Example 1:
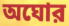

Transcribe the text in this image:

অঘোর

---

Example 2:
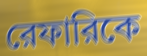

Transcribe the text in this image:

রেফারিকে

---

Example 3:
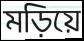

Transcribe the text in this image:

মড়িয়ে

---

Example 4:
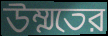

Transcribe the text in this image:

উম্মতের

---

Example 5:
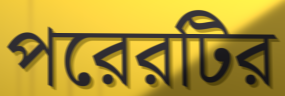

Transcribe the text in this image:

পরেরটির